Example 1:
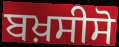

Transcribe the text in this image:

ਬਖ਼ਸੀਸੋ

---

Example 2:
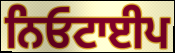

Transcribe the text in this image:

ਨਿਓਟਾਈਪ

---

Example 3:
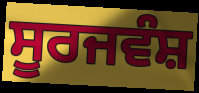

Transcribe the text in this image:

ਸੂਰਜਵੰਸ਼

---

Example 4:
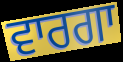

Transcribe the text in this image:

ਵਾਰਗਾ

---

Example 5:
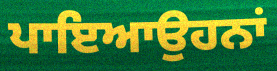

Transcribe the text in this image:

ਪਾਇਆਉਹਨਾਂ